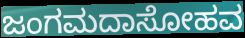
ಜಂಗಮದಾಸೋಹವ